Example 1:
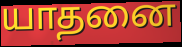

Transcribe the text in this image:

யாதனை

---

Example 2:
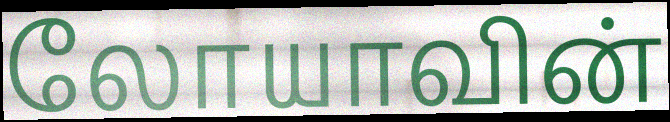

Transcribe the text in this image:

லோயாவின்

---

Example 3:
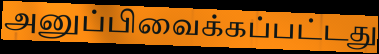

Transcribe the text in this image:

அனுப்பிவைக்கப்பட்டது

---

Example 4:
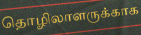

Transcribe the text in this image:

தொழிலாளருக்காக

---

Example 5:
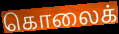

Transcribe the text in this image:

கொலைக்